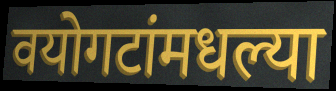
वयोगटांमधल्या